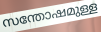
സന്തോഷമുള്ള